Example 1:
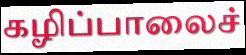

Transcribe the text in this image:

கழிப்பாலைச்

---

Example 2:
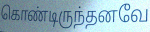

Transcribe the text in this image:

கொண்டிருந்தனவே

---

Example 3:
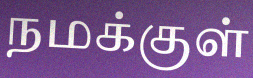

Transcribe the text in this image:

நமக்குள்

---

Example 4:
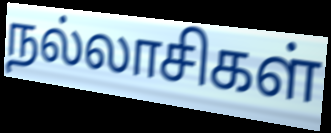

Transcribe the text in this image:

நல்லாசிகள்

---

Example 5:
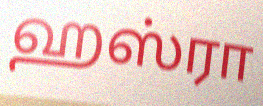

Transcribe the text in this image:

ஹஸ்ரா